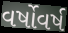
વર્ષોવર્ષ